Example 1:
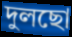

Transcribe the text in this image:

দুলছো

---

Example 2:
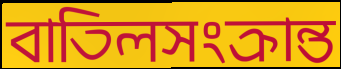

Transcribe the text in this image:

বাতিলসংক্রান্ত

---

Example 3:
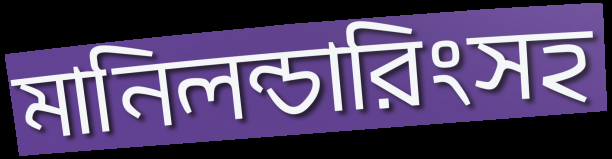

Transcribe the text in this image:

মানিলন্ডারিংসহ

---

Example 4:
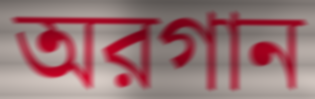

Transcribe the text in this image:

অরগান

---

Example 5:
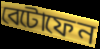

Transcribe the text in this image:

বেটোফেন